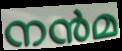
നൻമ